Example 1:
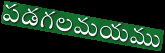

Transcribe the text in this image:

పడగలమయము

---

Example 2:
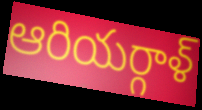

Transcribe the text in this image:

ఆరియర్గాళ్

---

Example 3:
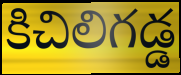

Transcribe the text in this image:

కిచిలిగడ్డ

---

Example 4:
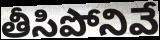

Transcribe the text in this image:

తీసిపోనివే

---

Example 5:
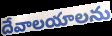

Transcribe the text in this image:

దేవాలయాలను